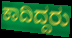
ಕಾದಿದ್ದರು